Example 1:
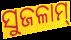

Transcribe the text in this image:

ସୁଜଳାମ୍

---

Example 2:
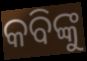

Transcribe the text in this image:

କବିଙ୍କୁ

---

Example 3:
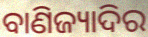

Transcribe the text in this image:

ବାଣିଜ୍ୟାଦିର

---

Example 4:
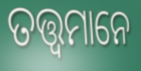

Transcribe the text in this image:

ତତ୍ତ୍ବମାନେ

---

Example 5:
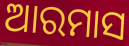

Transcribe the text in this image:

ଆରମାସ